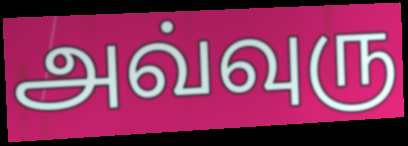
அவ்வுரு